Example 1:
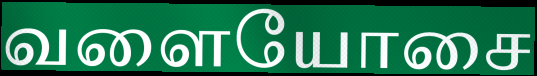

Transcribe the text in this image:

வளையோசை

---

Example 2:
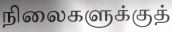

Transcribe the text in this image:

நிலைகளுக்குத்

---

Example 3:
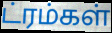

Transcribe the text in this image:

ட்ரம்கள்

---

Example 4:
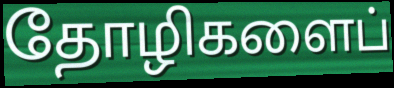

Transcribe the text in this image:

தோழிகளைப்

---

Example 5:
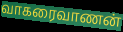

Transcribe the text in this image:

வாகரைவாணன்